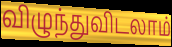
விழுந்துவிடலாம்